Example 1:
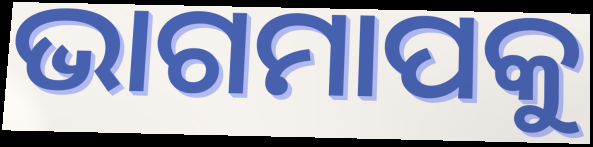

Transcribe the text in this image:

ଭାଗମାପକୁ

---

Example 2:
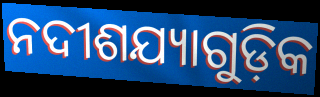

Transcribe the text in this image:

ନଦୀଶଯ୍ୟାଗୁଡ଼ିକ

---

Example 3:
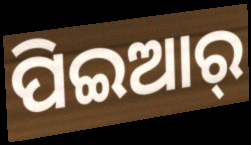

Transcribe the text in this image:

ପିଇଆର୍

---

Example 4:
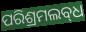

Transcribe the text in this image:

ପରିଶ୍ରମଲବ୍‍ଧ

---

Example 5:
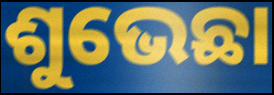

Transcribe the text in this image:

ଶୁଭେଛା